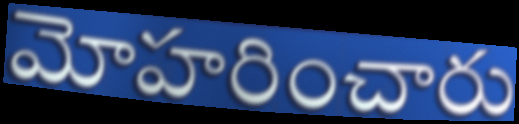
మోహరించారు